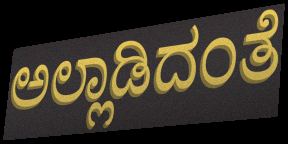
ಅಲ್ಲಾಡಿದಂತೆ